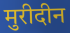
मुरीदीन